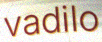
vadilo